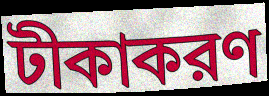
টীকাকরণ